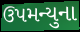
ઉપમન્યુના